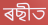
ৰছীত